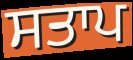
ਸਤਾਪ